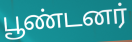
பூண்டனர்